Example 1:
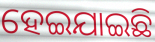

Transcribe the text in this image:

ହେଇଯାଇଛି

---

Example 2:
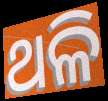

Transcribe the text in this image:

ଥଳି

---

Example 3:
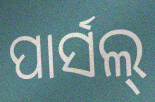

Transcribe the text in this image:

ପାର୍ସଲ୍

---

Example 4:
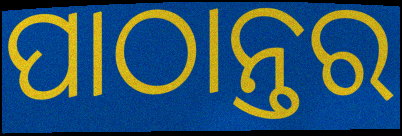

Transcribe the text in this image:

ପାଠାନ୍ତର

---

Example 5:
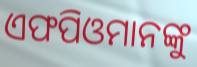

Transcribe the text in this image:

ଏଫପିଓମାନଙ୍କୁ